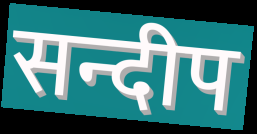
सन्दीप